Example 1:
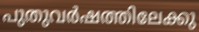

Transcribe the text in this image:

പുതുവർഷത്തിലേക്കു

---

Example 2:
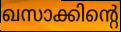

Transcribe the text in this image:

ഖസാക്കിന്റെ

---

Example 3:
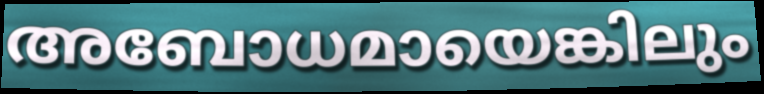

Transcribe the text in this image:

അബോധമായെങ്കിലും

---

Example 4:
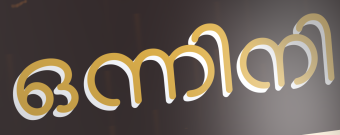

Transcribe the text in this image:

ഒന്നിനി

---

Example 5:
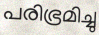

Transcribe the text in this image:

പരിഭ്രമിച്ചു